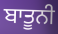
ਬਾਤੂਨੀ